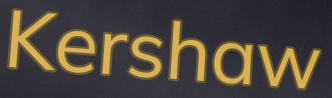
Kershaw